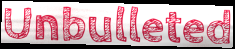
Unbulleted